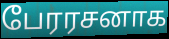
பேரரசனாக